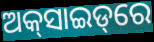
ଅକ୍‌ସାଇଡ୍‌ରେ